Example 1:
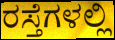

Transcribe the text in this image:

ರಸ್ತೆಗಳಲ್ಲಿ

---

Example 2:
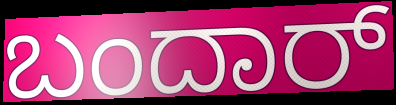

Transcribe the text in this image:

ಬಂದಾರ್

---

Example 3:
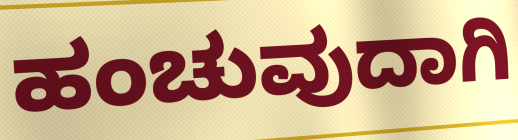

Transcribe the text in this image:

ಹಂಚುವುದಾಗಿ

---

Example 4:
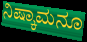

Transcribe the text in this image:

ನಿಷ್ಕಾಮನೂ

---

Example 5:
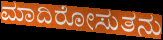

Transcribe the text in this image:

ಮಾದಿರೋಸುತನು